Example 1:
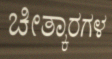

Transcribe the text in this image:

ಚೀತ್ಕಾರಗಳ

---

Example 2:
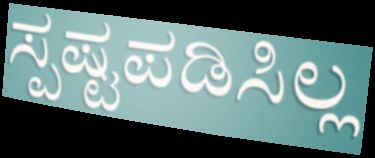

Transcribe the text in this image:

ಸ್ಪಷ್ಟಪಡಿಸಿಲ್ಲ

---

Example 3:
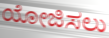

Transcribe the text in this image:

ಯೋಜಿಸಲು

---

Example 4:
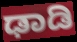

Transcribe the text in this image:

ಢಾಡಿ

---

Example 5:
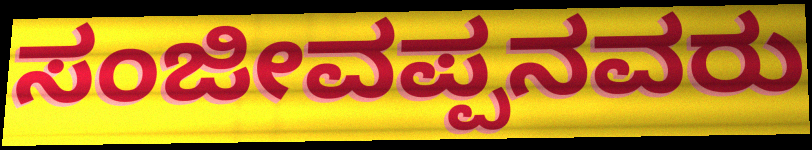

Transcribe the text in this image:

ಸಂಜೀವಪ್ಪನವರು